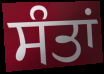
ਸੰਤਾਂ